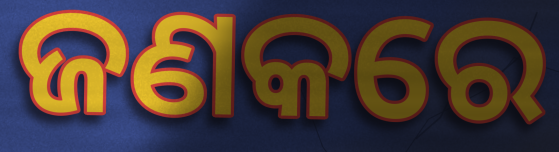
ଜଣକରେ